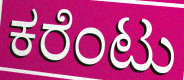
ಕರೆಂಟು